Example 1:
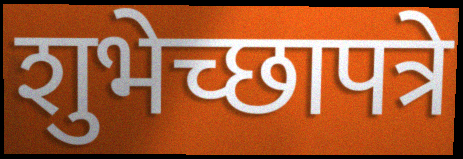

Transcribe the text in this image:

शुभेच्छापत्रे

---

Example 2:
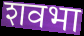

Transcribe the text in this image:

शवभा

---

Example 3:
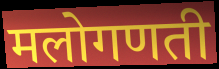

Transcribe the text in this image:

मलोगणती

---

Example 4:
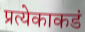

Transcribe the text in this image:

प्रत्येकाकडं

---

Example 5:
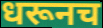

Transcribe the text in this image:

धरूनच